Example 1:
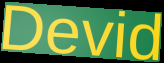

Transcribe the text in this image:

Devid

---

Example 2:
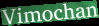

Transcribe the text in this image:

Vimochan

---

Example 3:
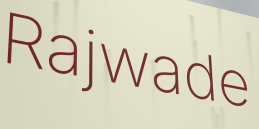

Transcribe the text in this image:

Rajwade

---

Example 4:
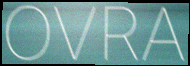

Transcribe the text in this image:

OVRA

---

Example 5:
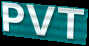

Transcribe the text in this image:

PVT